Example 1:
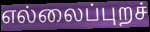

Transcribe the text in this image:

எல்லைப்புறச்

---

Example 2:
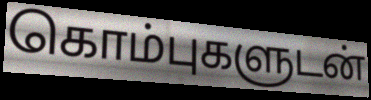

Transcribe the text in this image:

கொம்புகளுடன்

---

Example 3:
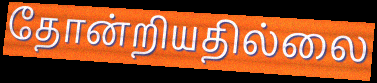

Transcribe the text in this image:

தோன்றியதில்லை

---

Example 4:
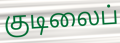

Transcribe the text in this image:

குடிலைப்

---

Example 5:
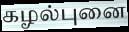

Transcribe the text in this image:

கழல்புனை